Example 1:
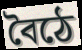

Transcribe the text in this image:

বৈঠে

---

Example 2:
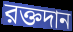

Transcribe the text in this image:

রক্তদান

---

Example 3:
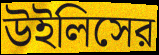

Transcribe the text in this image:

উইলিসের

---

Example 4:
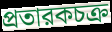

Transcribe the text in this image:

প্রতারকচক্র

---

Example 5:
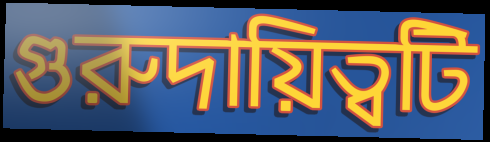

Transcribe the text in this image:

গুরুদায়িত্বটি